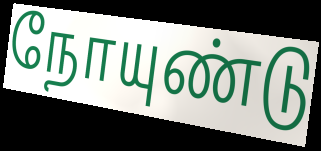
நோயுண்டு